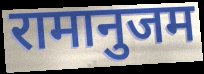
रामानुजम